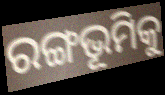
ରଙ୍ଗଭୂମିକୁ